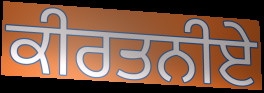
ਕੀਰਤਨੀਏ